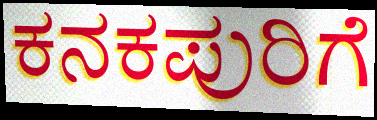
ಕನಕಪುರಿಗೆ